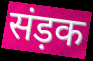
संड़क